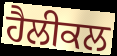
ਹੈਲੀਕਲ